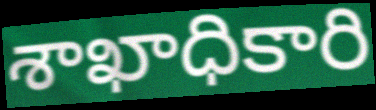
శాఖాధికారి